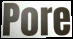
Pore